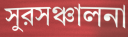
সুরসঞ্চালনা